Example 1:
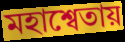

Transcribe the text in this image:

মহাশ্বেতায়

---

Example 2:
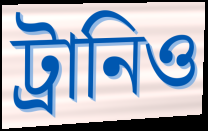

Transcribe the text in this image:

ট্রানিও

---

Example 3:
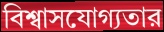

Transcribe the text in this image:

বিশ্বাসযোগ্যতার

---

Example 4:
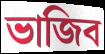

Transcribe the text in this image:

ভাজিব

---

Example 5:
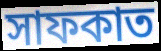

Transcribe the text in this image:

সাফকাত